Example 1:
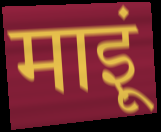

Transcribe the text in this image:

माइूं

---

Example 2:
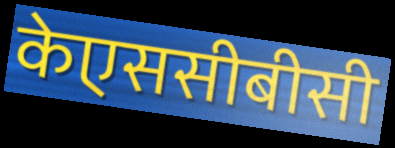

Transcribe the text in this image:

केएससीबीसी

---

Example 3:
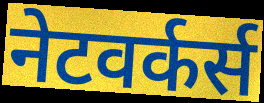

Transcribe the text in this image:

नेटवर्कर्स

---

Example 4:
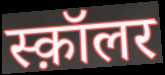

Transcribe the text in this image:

स्क़ॉलर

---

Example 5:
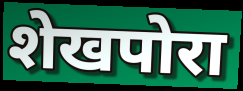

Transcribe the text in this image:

शेखपोरा